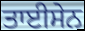
ਤਾਈਸੇਨ